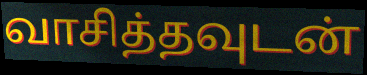
வாசித்தவுடன்